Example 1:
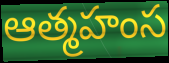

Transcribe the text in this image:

ఆత్మహంస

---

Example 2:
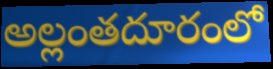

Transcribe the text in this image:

అల్లంతదూరంలో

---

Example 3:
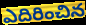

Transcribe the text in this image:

ఎదిరించిన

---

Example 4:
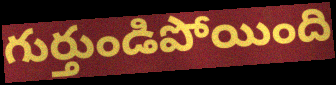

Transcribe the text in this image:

గుర్తుండిపోయింది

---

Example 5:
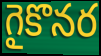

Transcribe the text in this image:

గైకొనర